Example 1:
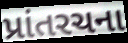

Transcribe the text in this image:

પ્રાંતરચના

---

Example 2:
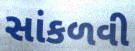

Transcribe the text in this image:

સાંકળવી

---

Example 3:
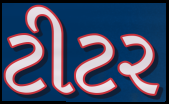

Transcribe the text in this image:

ટીટર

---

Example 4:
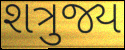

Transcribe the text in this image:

શત્રુજ્ય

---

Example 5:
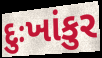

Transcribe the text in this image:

દુઃખાંકુર